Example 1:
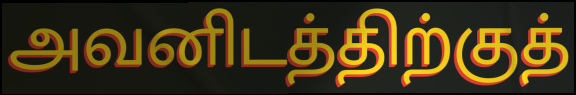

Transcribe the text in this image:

அவனிடத்திற்குத்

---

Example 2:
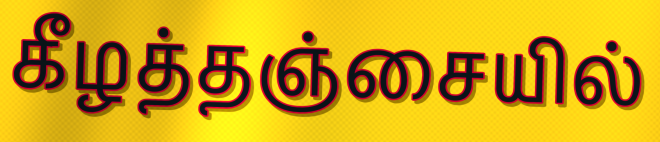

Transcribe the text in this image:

கீழத்தஞ்சையில்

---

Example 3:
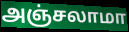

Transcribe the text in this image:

அஞ்சலாமா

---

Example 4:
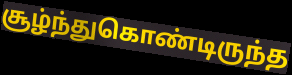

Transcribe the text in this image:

சூழ்ந்துகொண்டிருந்த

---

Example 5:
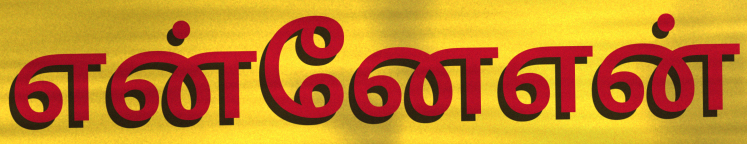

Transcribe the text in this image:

என்னேஎன்